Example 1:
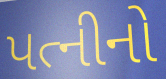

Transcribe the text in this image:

પત્નીનો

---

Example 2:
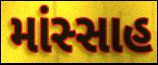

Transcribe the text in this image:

માંસ્સાહ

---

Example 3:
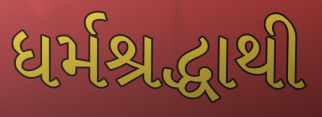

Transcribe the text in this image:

ધર્મશ્રદ્ધાથી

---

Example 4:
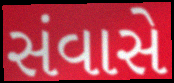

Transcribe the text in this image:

સંવાસે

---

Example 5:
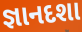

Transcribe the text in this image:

જ્ઞાનદશા